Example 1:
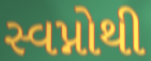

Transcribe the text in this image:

સ્વપ્નોથી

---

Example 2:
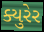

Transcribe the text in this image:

ક્યુરેર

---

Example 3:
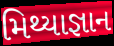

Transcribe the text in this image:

મિથ્યાજ્ઞાન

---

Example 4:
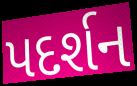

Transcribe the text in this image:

પદર્શન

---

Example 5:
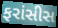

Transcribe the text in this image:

ફરાંસીસ